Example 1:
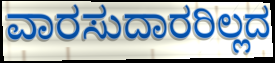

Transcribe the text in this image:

ವಾರಸುದಾರರಿಲ್ಲದ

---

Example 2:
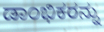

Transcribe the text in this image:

ಡಾಂಭಿಕರನ್ನು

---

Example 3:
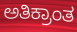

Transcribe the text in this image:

ಅತಿಕ್ರಾಂತ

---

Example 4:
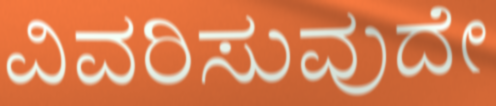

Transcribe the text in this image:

ವಿವರಿಸುವುದೇ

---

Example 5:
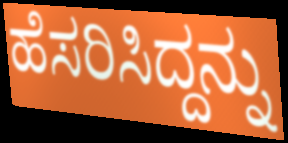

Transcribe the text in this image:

ಹೆಸರಿಸಿದ್ದನ್ನು